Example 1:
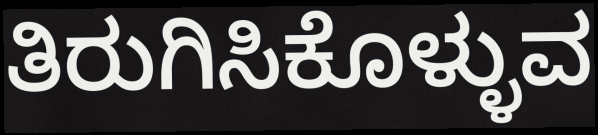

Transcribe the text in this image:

ತಿರುಗಿಸಿಕೊಳ್ಳುವ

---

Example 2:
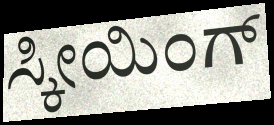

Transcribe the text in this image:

ಸ್ಕೀಯಿಂಗ್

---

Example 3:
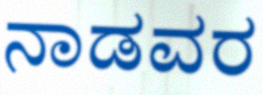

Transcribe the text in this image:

ನಾಡವರ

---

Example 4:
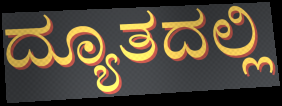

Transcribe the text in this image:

ದ್ಯೂತದಲ್ಲಿ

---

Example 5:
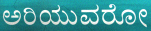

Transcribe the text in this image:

ಅರಿಯುವರೋ